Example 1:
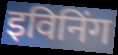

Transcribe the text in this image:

इविनिंग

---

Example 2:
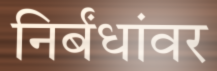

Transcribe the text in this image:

निर्बंधांवर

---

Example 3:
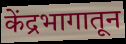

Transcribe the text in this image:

केंद्रभागातून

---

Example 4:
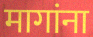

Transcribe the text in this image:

मागांना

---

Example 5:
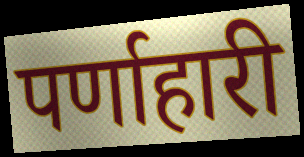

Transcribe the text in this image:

पर्णाहारी